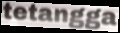
tetangga